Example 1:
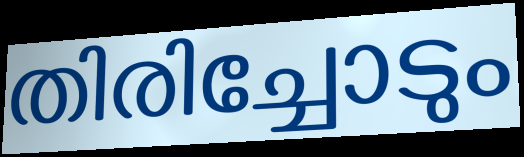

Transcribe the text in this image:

തിരിച്ചോടും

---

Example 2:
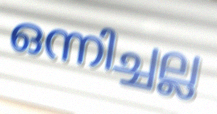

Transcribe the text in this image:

ഒന്നിച്ചല്ല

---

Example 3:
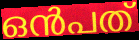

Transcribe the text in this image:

ഒൻപത്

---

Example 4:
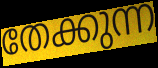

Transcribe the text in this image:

തേക്കുന്ന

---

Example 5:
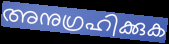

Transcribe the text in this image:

അനുഗ്രഹിക്കുക